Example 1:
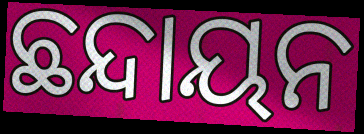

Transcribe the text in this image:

ଛନ୍ଦାୟନ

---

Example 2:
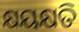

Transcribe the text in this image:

କ୍ଷୟକ୍ଷତି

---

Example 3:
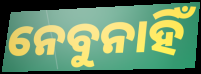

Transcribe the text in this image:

ନେବୁନାହିଁ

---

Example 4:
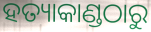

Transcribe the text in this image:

ହତ୍ୟାକାଣ୍ଡଠାରୁ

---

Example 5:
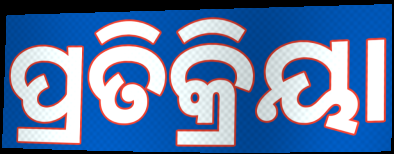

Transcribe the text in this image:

ପ୍ରତିକ୍ରିୟା